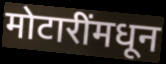
मोटारींमधून